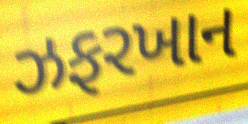
ઝફરખાન